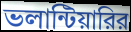
ভলান্টিয়ারির